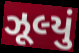
ઝૂલ્યું